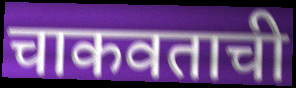
चाकवताची